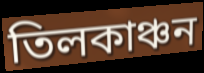
তিলকাঞ্চন